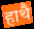
हाथै